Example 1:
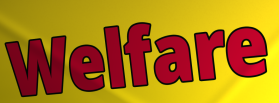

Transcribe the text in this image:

Welfare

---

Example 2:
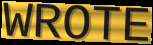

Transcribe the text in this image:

WROTE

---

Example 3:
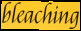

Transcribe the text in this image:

bleaching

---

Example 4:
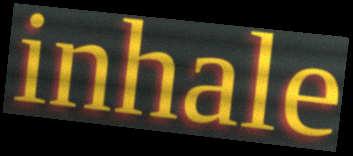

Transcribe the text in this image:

inhale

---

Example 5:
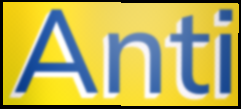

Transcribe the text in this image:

Anti